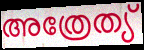
അത്രേത്യ്